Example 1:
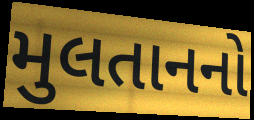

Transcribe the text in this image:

મુલતાનનો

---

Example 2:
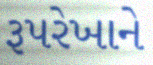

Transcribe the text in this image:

રૂપરેખાને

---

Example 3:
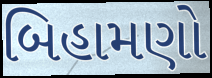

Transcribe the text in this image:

બિહામણો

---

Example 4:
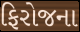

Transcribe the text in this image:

ફિરોજના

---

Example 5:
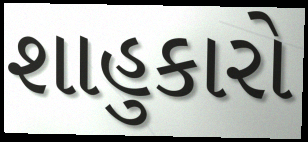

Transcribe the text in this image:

શાહુકારો